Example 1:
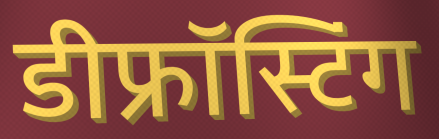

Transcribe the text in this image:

डीफ्रॉस्टिंग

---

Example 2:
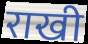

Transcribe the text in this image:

राखी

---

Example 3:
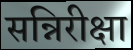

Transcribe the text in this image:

सन्निरीक्षा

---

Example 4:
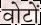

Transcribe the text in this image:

वोटों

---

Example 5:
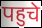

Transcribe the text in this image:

पहुचे